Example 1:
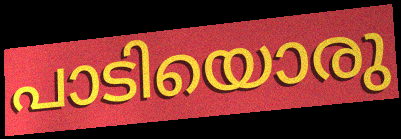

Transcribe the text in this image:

പാടിയൊരു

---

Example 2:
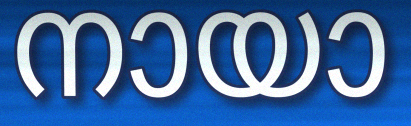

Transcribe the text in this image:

നായാ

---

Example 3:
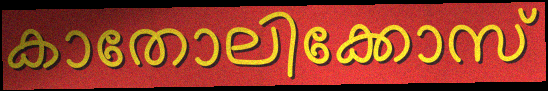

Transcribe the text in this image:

കാതോലിക്കോസ്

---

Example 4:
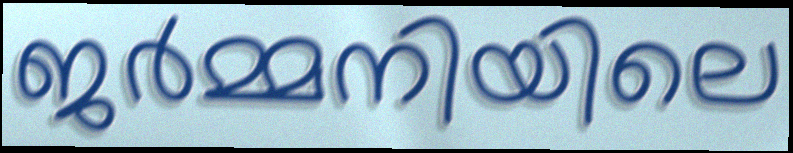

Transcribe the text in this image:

ജർമ്മനിയിലെ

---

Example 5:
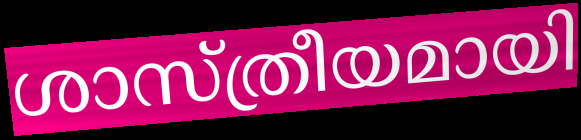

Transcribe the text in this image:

ശാസ്ത്രീയമായി